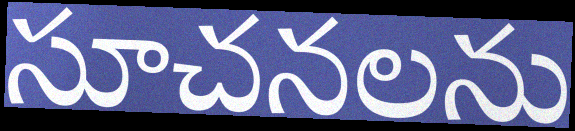
సూచనలను